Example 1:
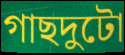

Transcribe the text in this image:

গাছদুটো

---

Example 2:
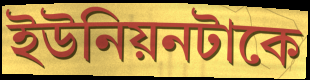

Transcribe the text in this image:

ইউনিয়নটাকে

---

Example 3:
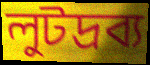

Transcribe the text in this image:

লুটদ্রব্য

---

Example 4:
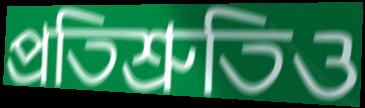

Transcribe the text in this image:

প্রতিশ্রুতিও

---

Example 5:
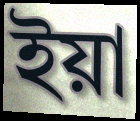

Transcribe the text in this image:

ইয়া